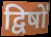
द्विषो॑